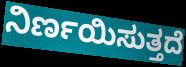
ನಿರ್ಣಯಿಸುತ್ತದೆ